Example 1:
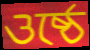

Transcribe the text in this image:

ওষ্ঠে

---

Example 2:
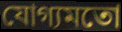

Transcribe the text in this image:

যোগ্যমতো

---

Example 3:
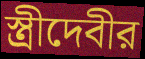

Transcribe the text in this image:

স্ত্রীদেবীর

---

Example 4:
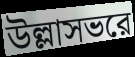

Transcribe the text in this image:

উল্লাসভরে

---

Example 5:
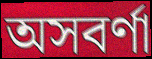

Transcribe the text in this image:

অসবর্ণা